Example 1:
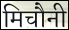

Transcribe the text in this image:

मिचौनी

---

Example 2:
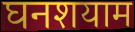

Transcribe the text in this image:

घनशयाम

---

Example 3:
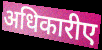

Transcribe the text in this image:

अधिकारीए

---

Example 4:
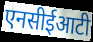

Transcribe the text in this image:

एनसीईआटी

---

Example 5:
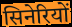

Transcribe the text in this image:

सिनेरियों